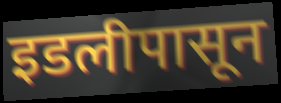
इडलीपासून